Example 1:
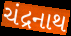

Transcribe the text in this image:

ચંદ્રનાથ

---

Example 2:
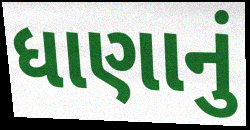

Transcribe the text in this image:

ધાણાનું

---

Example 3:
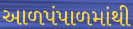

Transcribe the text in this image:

આળપંપાળમાંથી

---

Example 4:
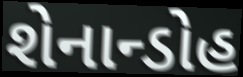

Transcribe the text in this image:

શેનાન્ડોહ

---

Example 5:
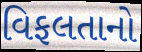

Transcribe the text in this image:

વિફલતાનો